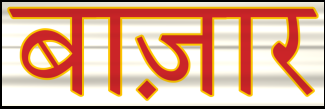
बाज़ार